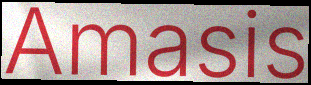
Amasis